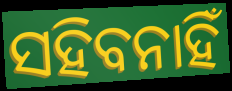
ସହିବନାହିଁ